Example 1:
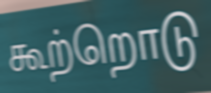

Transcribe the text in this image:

கூற்றொடு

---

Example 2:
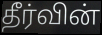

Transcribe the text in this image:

தீர்வின்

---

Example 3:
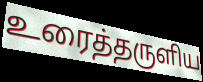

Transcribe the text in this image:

உரைத்தருளிய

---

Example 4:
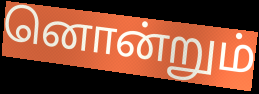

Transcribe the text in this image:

னொன்றும்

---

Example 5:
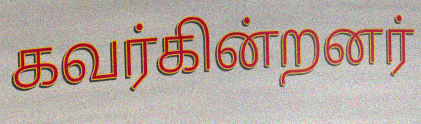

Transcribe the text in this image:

கவர்கின்றனர்